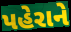
પહેરાને